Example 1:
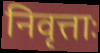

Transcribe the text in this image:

निवृत्ताः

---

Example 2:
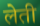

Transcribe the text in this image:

लेती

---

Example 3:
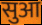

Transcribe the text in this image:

सुआ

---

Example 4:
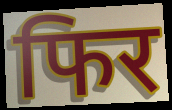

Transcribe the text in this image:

फिर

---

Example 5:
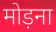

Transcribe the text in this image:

मोड़ना